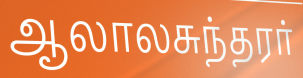
ஆலாலசுந்தரர்